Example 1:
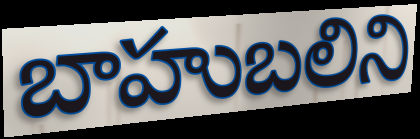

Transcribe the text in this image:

బాహుబలిని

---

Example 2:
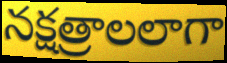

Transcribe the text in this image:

నక్షత్రాలలాగా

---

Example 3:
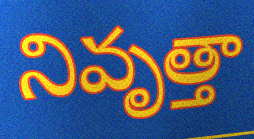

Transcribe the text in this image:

నివృత్తా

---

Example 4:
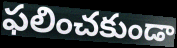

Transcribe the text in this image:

ఫలించకుండా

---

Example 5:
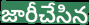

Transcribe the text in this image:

జారీచేసిన